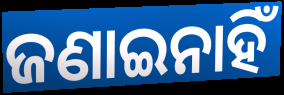
ଜଣାଇନାହିଁ